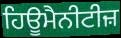
ਹਿਊਮੈਨੀਟੀਜ਼